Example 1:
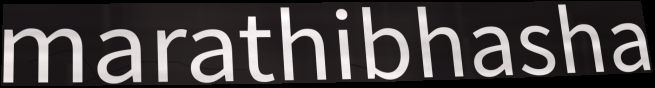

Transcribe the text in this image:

marathibhasha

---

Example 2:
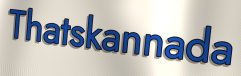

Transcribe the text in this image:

Thatskannada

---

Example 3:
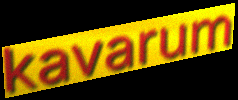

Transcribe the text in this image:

kavarum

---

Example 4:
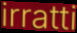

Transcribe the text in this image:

irratti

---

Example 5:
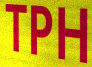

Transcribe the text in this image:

TPH